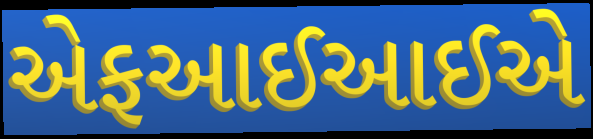
એફઆઈઆઈએ